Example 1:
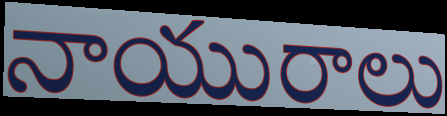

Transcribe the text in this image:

నాయురాలు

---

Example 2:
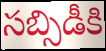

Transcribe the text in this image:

సబ్సిడీకి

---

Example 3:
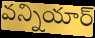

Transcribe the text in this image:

వన్నియార్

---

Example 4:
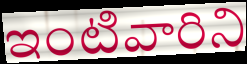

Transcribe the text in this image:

ఇంటివారిని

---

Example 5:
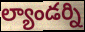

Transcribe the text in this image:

ల్యాండర్ని